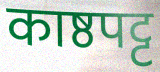
काष्ठपट्ट